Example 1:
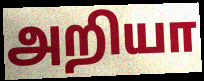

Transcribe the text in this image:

அறியா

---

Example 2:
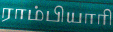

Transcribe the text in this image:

ராம்பியாரி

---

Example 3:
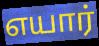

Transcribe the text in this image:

எயார்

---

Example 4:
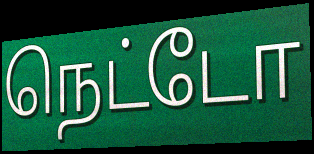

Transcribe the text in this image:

நெட்டோ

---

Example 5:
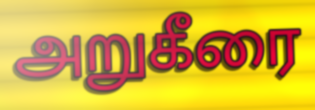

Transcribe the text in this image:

அறுகீரை